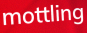
mottling